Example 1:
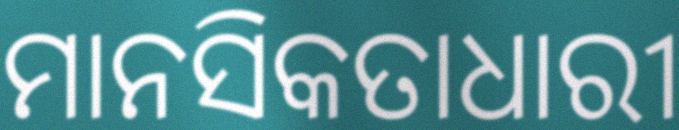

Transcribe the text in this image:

ମାନସିକତାଧାରୀ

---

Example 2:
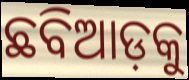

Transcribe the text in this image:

ଛବିଆଡ଼କୁ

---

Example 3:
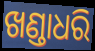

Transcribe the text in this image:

ଖଣ୍ଡାଧରି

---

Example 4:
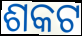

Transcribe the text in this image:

ଶକଟ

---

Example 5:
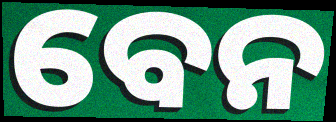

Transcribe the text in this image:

ବେନ